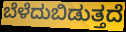
ಬೆಳೆದುಬಿಡುತ್ತದೆ